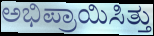
ಅಭಿಪ್ರಾಯಿಸಿತ್ತು